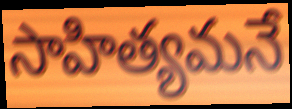
సాహిత్యమనే